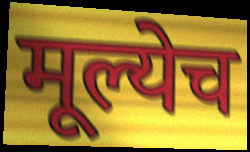
मूल्येच